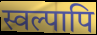
स्वल्पापि